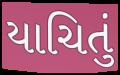
યાચિતું